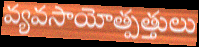
వ్యవసాయోత్పత్తులు